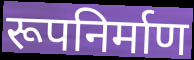
रूपनिर्माण